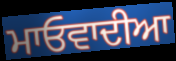
ਮਾਓਵਾਦੀਆ